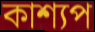
কাশ্যপ